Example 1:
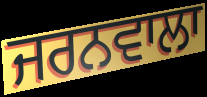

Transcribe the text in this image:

ਜਰਨਵਾਲਾ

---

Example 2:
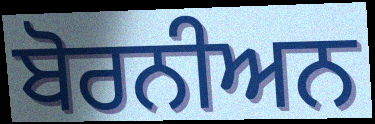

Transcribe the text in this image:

ਬੋਰਨੀਅਨ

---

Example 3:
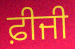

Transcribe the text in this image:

ਫ਼ੀਜੀ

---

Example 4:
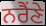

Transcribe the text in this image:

ਨਰੈਂਣੇ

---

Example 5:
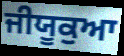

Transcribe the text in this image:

ਜੀਯੂਕੁਆ